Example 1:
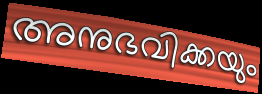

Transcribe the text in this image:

അനുഭവിക്കയും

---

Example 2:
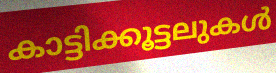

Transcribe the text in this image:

കാട്ടിക്കൂട്ടലുകൾ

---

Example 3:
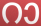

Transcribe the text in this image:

റാ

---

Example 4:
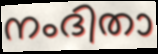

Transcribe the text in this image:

നംദിതാ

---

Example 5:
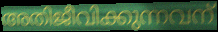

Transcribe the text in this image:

അതിജീവിക്കുന്നവന്